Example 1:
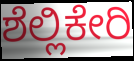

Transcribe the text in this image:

ಶೆಲ್ಲಿಕೇರಿ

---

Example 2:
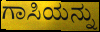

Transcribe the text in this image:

ಗಾಸಿಯನ್ನು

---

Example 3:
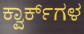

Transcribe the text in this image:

ಕ್ವಾರ್ಕ್‌ಗಳ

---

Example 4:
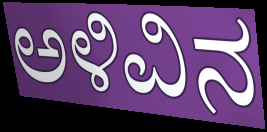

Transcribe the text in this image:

ಅಳಿವಿನ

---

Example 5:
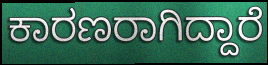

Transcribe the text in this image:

ಕಾರಣರಾಗಿದ್ದಾರೆ